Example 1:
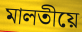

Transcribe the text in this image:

মালতীয়ে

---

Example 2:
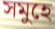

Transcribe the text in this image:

সমুহে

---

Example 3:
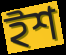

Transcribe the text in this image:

ইশ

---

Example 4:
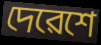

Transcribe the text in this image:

দেৱেশে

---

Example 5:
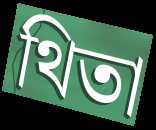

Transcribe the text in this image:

থিতা